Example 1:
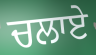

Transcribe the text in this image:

ਚਲਾਏ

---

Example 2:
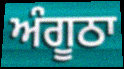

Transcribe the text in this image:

ਅੰਗੂਠਾ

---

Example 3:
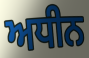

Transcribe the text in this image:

ਅਧੀਨ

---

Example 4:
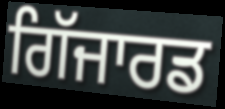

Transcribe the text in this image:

ਗਿੱਜਾਰਡ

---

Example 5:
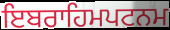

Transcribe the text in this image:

ਇਬਰਾਹਿਮਪਟਨਮ